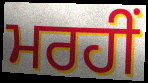
ਮਰਹੀਂ